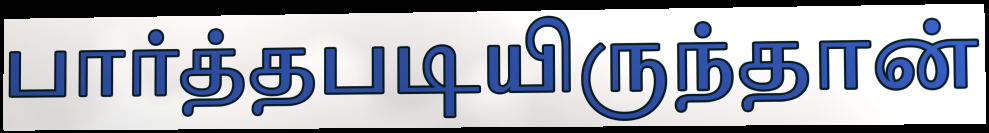
பார்த்தபடியிருந்தான்